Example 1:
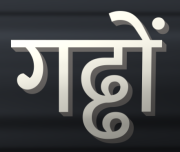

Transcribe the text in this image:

गढ्ढों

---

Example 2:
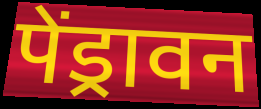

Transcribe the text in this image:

पेंड्रावन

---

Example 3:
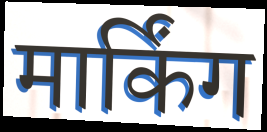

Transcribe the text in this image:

मार्किंग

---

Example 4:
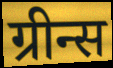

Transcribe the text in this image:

ग्रीन्स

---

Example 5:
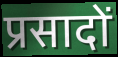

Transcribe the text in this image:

प्रसादों